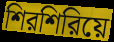
শিরশিরিয়ে